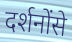
दर्शनोंसे